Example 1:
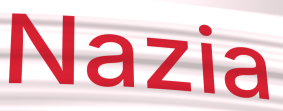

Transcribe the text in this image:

Nazia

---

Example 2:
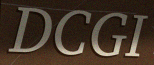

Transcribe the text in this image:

DCGI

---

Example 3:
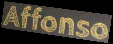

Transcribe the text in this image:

Affonso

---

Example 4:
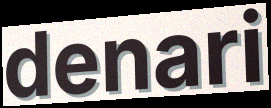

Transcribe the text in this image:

denari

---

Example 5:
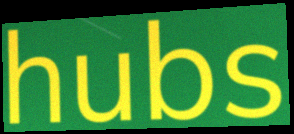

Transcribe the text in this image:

hubs